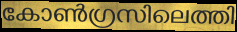
കോൺഗ്രസിലെത്തി